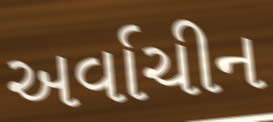
અર્વાચીન